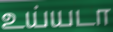
உய்யடா